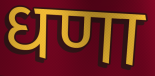
धणा